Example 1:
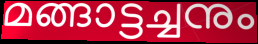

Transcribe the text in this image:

മങ്ങാട്ടച്ചനും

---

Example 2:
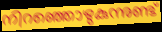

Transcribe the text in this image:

നിറഞ്ഞൊഴുകുന്നുണ്ട്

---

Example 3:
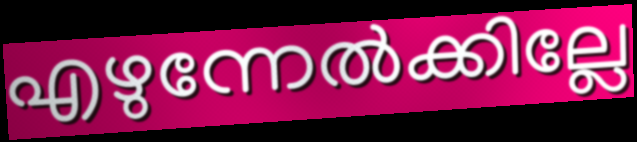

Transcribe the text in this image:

എഴുന്നേൽക്കില്ലേ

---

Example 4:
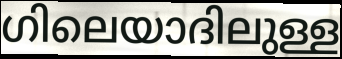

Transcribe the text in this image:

ഗിലെയാദിലുള്ള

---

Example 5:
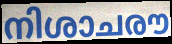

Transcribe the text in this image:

നിശാചരൗ